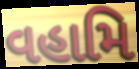
વહામિ